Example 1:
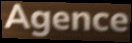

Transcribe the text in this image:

Agence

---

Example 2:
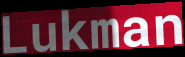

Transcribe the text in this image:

Lukman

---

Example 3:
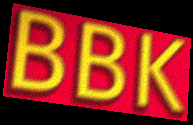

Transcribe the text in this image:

BBK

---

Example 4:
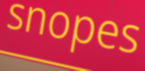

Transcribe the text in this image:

snopes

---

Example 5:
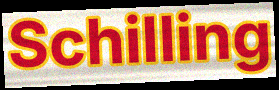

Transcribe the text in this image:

Schilling